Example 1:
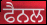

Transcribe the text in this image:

ਫੈਨਲ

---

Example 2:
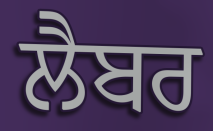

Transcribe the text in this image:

ਲੈਬਰ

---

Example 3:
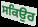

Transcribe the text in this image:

ਸਕਿਉਰ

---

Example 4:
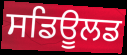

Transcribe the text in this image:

ਸਡਿਊਲਡ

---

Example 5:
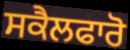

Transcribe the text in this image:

ਸਕੈਲਫਾਰੋ